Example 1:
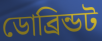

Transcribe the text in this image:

ডোব্রিন্ডট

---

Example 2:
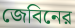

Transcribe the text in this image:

জেবিনের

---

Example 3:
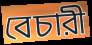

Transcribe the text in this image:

বেচারী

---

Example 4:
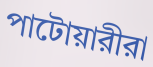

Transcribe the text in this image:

পাটোয়ারীরা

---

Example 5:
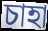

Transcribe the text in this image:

চাহা